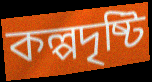
কল্পদৃষ্টি